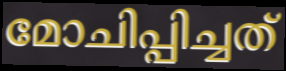
മോചിപ്പിച്ചത്